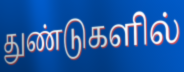
துண்டுகளில்